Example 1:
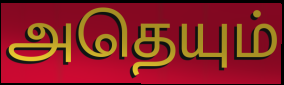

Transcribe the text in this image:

அதெயும்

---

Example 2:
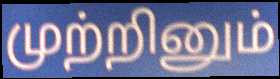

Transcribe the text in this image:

முற்றினும்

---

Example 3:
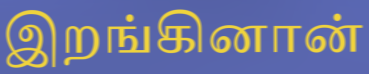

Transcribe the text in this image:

இறங்கினான்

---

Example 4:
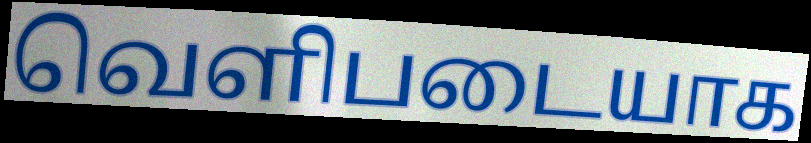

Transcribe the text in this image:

வெளிபடையாக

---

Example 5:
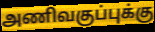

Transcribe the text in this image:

அணிவகுப்புக்கு